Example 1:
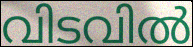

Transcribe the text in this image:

വിടവിൽ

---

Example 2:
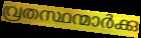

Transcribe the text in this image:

വ്രതസ്ഥന്മാർക്കു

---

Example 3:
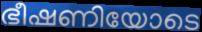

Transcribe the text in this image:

ഭീഷണിയോടെ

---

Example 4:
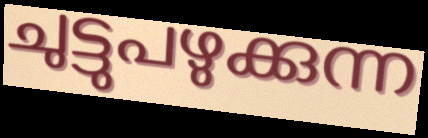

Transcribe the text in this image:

ചുട്ടുപഴുക്കുന്ന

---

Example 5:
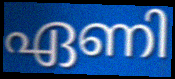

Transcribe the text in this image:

ഏണി